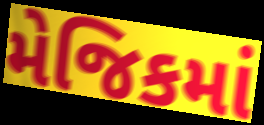
મેજિકમાં